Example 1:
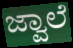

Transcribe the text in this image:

ಜ್ವಾಲೆ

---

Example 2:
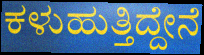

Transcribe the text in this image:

ಕಳುಹುತ್ತಿದ್ದೇನೆ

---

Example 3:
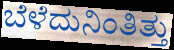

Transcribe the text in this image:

ಬೆಳೆದುನಿಂತಿತ್ತು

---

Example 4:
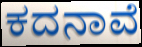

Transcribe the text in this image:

ಕದನಾವೆ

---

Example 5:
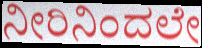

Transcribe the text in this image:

ನೀರಿನಿಂದಲೇ